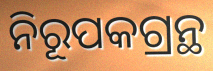
ନିରୂପକଗ୍ରନ୍ଥ